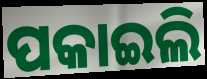
ପକାଇଲି